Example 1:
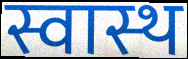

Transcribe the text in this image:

स्वास्थ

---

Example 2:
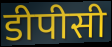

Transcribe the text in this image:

डीपीसी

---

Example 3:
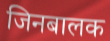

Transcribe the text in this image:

जिनबालक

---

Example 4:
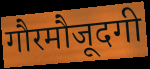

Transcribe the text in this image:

गौरमौजूदगी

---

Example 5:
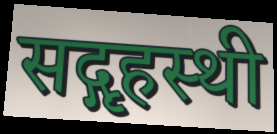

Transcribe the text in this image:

सद्गृहस्थी